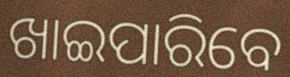
ଖାଇପାରିବେ